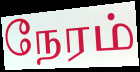
நேரம்